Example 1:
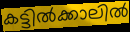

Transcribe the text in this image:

കട്ടിൽക്കാലിൽ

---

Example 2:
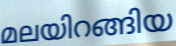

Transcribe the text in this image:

മലയിറങ്ങിയ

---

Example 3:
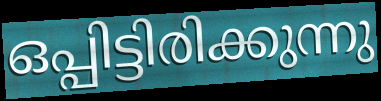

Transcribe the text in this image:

ഒപ്പിട്ടിരിക്കുന്നു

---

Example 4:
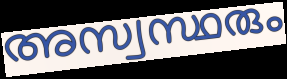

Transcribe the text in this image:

അസ്വസ്ഥരും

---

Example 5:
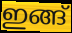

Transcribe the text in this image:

ഇങ്ങ്